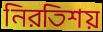
নিরতিশয়